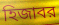
হিজাবর